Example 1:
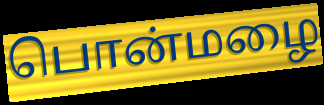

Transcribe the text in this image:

பொன்மழை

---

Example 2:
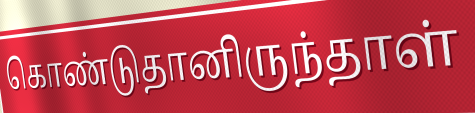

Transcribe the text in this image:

கொண்டுதானிருந்தாள்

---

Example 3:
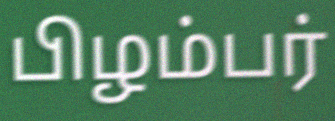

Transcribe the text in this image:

பிழம்பர்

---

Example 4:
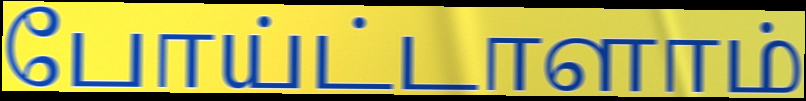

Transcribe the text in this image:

போய்ட்டாளாம்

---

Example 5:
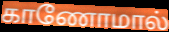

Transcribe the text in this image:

காணோமால்